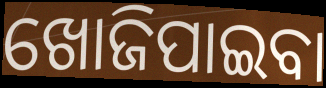
ଖୋଜିପାଇବା